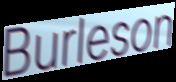
Burleson